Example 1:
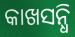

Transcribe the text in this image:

କାଖସନ୍ଧି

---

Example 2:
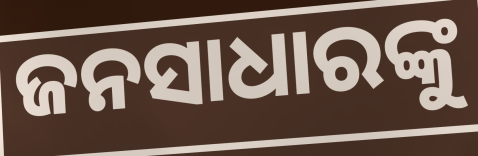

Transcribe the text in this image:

ଜନସାଧାରଙ୍କୁ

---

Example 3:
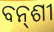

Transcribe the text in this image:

ବନ୍‌ଶୀ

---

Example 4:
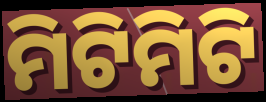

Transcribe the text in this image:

ମିଟିମିଟି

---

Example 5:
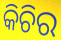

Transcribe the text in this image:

କିଚିର